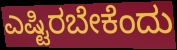
ಎಷ್ಟಿರಬೇಕೆಂದು